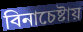
বিনাচেষ্টায়